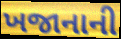
ખજાનાની